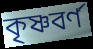
কৃষ্ণবর্ণ